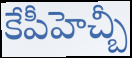
కేపీహెచ్బీ